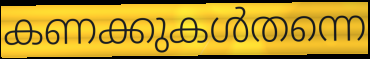
കണക്കുകൾതന്നെ